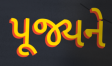
પૂજ્યને